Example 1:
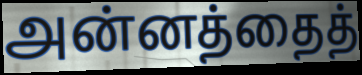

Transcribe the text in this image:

அன்னத்தைத்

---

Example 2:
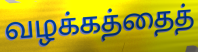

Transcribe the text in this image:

வழக்கத்தைத்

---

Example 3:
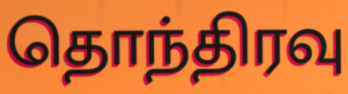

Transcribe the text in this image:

தொந்திரவு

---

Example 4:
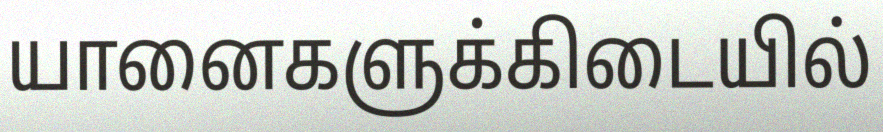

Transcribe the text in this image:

யானைகளுக்கிடையில்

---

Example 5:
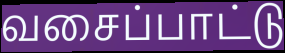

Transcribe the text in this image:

வசைப்பாட்டு